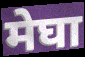
मेघा